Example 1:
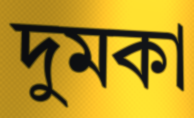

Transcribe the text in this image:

দুমকা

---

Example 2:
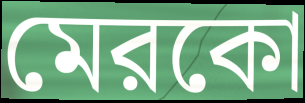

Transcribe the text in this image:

মেরকো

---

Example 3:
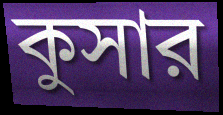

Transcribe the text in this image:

কুসার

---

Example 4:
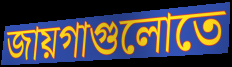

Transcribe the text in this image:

জায়গাগুলোতে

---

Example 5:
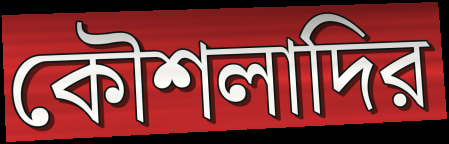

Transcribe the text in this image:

কৌশলাদির